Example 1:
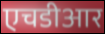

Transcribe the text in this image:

एचडीआर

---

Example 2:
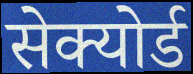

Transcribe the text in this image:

सेक्योर्ड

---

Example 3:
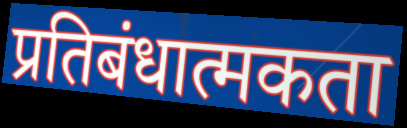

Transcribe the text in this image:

प्रतिबंधात्मकता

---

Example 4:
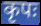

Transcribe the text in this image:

कृपः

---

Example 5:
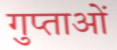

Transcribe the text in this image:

गुप्ताओं